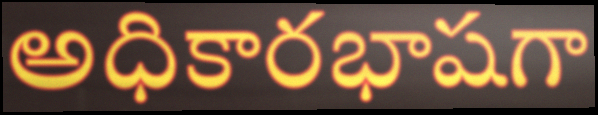
అధికారభాషగా